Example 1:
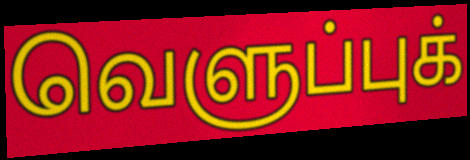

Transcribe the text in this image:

வெளுப்புக்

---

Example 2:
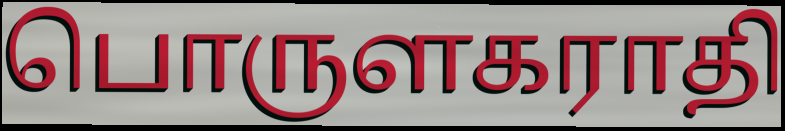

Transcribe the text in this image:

பொருளகராதி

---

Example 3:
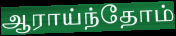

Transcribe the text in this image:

ஆராய்ந்தோம்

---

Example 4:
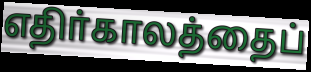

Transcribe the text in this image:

எதிர்காலத்தைப்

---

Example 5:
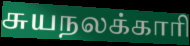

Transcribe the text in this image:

சுயநலக்காரி